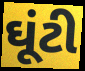
ઘૂંટી